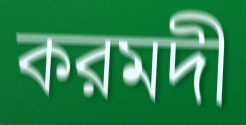
করমদী